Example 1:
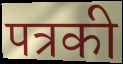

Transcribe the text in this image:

पत्रकी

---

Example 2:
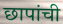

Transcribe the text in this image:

छापांची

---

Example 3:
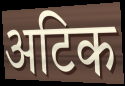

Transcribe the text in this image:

अटिक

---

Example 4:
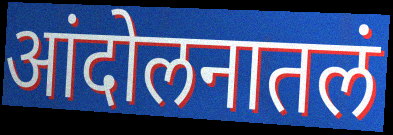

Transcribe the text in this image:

आंदोलनातलं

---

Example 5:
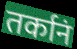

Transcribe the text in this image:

तर्कानं